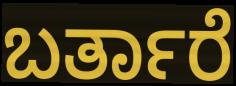
ಬರ್ತಾರೆ